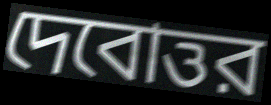
দেবোত্তর